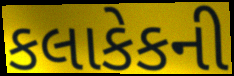
કલાકેકની